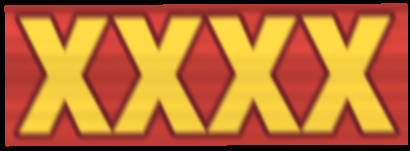
XXXX